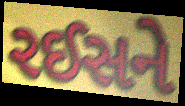
રઈસને